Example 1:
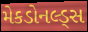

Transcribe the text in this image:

મેકડોનલ્ડ્સ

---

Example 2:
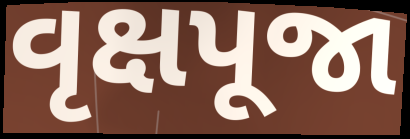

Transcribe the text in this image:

વૃક્ષપૂજા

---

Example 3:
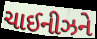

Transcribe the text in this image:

ચાઈનીઝને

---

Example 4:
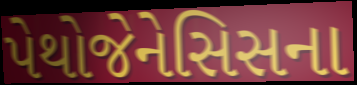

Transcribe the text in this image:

પેથોજેનેસિસના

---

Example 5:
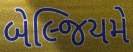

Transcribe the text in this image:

બેલ્જિયમે